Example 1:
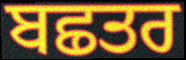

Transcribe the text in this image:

ਬਛਤਰ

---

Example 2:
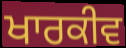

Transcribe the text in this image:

ਖਾਰਕੀਵ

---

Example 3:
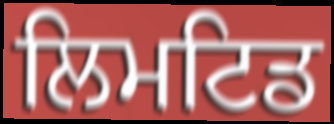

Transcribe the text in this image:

ਲਿਮਟਿਡ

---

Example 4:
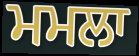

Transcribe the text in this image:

ਮਮਲਾ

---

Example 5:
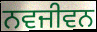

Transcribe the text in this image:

ਨਵਜੀਵਨ